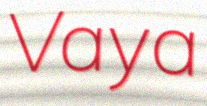
Vaya